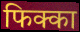
फिक्का